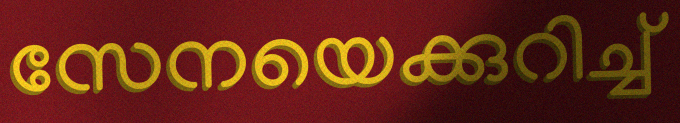
സേനയെക്കുറിച്ച്